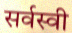
सर्वस्वी